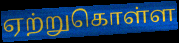
ஏற்றுகொள்ள